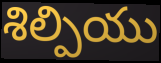
శిల్పియు